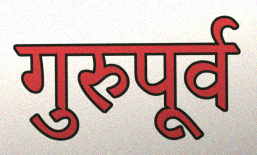
गुरुपूर्व